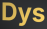
Dys